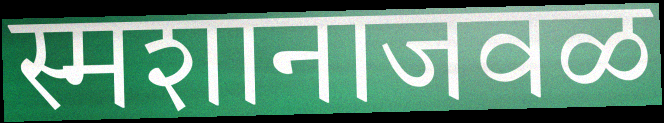
स्मशानाजवळ